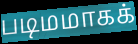
படிமமாகக்